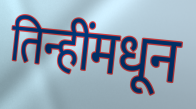
तिन्हींमधून